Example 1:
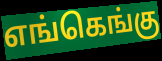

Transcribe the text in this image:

எங்கெங்கு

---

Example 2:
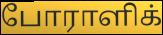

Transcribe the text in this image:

போராளிக்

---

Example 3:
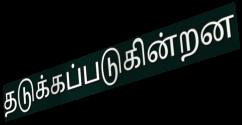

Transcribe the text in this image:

தடுக்கப்படுகின்றன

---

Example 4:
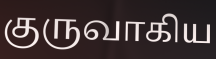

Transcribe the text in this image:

குருவாகிய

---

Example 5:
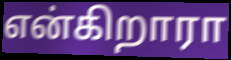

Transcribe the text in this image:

என்கிறாரா